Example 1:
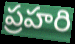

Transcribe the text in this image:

ప్రహరి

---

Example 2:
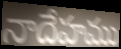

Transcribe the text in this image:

నాదేహము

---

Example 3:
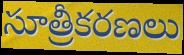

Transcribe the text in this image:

సూత్రీకరణలు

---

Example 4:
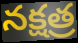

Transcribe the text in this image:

నక్షత్ర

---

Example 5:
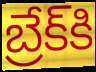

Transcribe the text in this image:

బ్రేక్‌కి